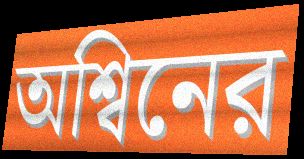
অশ্বিনের